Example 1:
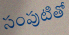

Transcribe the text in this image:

సంపుటితో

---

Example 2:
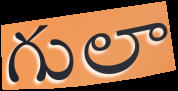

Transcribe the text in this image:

గులా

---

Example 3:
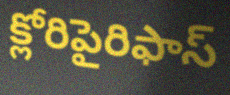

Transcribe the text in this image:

క్లోరిపైరిఫాస్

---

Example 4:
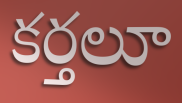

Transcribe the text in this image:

కర్తలూ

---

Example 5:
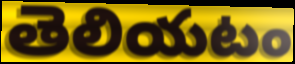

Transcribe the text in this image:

తెలియటం